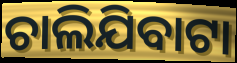
ଚାଲିଯିବାଟା